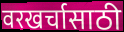
वरखर्चासाठी